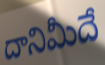
దానిమీదే